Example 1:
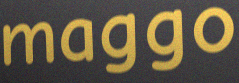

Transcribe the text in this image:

maggo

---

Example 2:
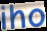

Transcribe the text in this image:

iho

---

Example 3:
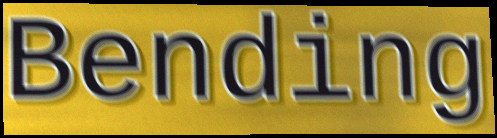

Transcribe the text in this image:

Bending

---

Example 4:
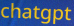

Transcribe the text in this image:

chatgpt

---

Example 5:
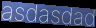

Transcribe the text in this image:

asdasdad